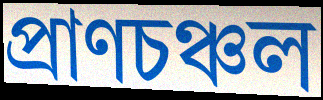
প্ৰাণচঞ্চল